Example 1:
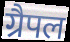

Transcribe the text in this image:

ग्रैपल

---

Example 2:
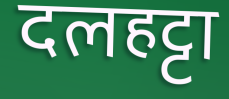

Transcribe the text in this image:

दलहट्टा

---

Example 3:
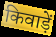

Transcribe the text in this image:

किवाड़ें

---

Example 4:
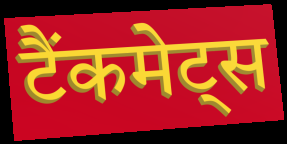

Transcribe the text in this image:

टैंकमेट्स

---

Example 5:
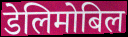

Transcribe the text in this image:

डेलिमोबिल